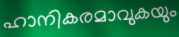
ഹാനികരമാവുകയും